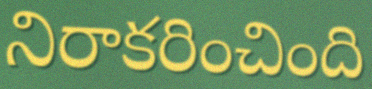
నిరాకరించింది